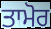
ਤਾਮੋਰ